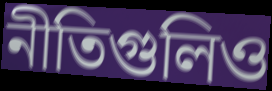
নীতিগুলিও